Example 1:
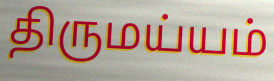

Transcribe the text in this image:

திருமய்யம்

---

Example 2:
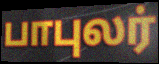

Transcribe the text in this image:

பாபுலர்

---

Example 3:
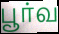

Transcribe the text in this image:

பூர்வ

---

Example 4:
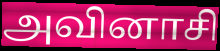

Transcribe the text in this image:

அவினாசி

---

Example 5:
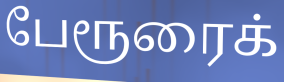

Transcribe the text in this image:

பேரூரைக்